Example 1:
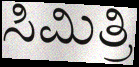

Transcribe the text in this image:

ಸಿಮಿತ್ರಿ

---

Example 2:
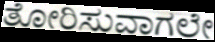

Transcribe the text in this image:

ತೋರಿಸುವಾಗಲೇ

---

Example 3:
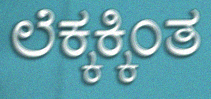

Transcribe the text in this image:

ಲೆಕ್ಕಕ್ಕಿಂತ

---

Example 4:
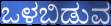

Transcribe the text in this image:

ಒಳಬಿಡುವ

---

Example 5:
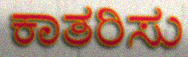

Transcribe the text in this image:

ಕಾತರಿಸು